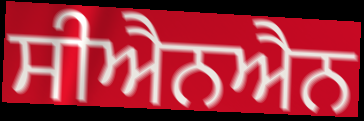
ਸੀਐਨਐਨ